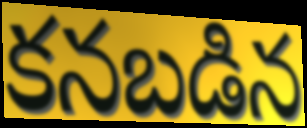
కనబడిన